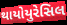
થાયોયુરેસિલ